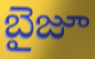
బైజూ